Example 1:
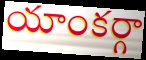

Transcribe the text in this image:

యాంకర్గా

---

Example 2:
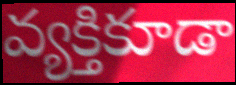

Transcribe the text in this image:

వ్యక్తికూడా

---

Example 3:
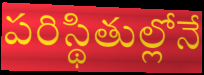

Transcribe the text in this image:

పరిస్థితుల్లోనే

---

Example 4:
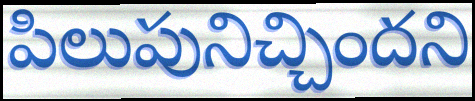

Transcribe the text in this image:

పిలుపునిచ్చిందని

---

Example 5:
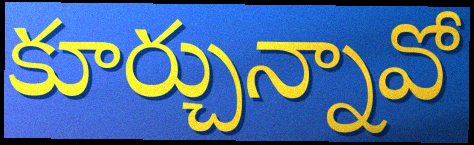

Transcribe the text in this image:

కూర్చున్నావో